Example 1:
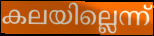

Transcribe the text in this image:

കലയില്ലെന്ന്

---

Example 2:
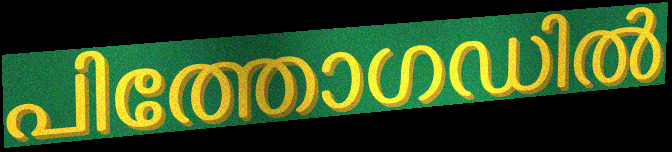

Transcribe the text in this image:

പിത്തോഗഡിൽ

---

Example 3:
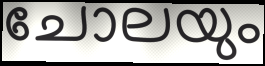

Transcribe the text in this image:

ചോലയും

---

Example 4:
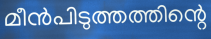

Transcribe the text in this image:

മീൻപിടുത്തത്തിന്റെ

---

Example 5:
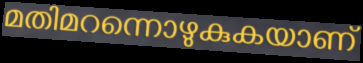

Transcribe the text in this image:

മതിമറന്നൊഴുകുകയാണ്